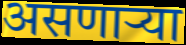
असणार्‍या